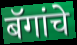
बॅगांचे